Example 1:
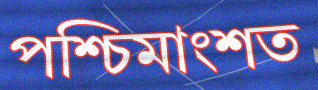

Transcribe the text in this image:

পশ্চিমাংশত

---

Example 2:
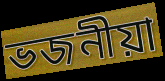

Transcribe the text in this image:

ভজনীয়া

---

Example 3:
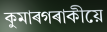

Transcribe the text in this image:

কুমাৰগৰাকীয়ে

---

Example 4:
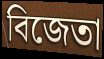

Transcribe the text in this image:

বিজেতা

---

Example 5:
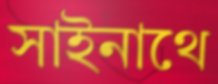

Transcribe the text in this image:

সাইনাথে